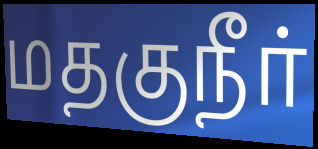
மதகுநீர்